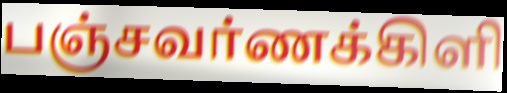
பஞ்சவர்ணக்கிளி